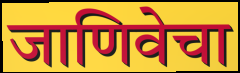
जाणिवेचा